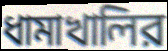
ধামাখালির